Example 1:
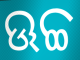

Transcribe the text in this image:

ଊଚ୍ଚ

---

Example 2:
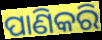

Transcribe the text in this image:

ପାଣିକରି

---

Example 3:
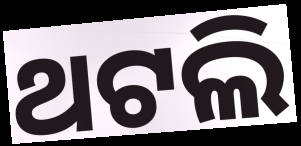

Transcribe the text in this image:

ଥଟଲି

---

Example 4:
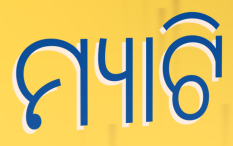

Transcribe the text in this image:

ମ୍ୟାଟି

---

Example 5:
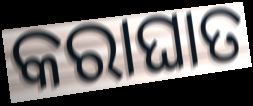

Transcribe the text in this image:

କରାଘାତ